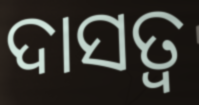
ଦାସତ୍ବ